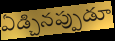
ఏడ్చినప్పుడూ